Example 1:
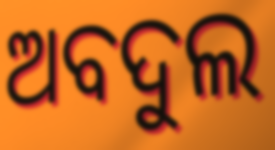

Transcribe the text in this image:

ଅବଦୁଲ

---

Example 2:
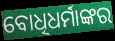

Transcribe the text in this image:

ବୋଧିଧର୍ମାଙ୍କର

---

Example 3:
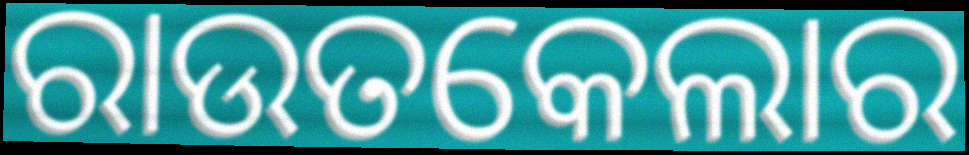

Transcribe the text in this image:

ରାଉତକେଲାର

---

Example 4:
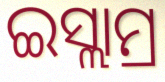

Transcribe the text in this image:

ଇସ୍ଲାମ୍ର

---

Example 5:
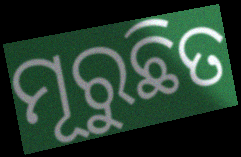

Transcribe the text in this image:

ମୂରୁଛିତ